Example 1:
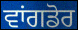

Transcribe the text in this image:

ਵਾਂਗਡੋਰ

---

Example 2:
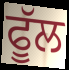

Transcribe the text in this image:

ਫੂੱਲ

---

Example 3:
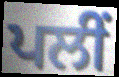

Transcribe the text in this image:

ਪਲੀਂ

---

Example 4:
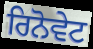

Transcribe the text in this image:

ਰਿਨੋਵੇਟ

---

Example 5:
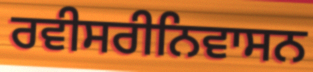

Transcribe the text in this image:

ਰਵੀਸਰੀਨਿਵਾਸਨ